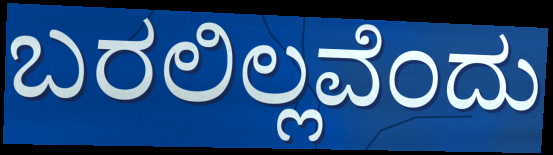
ಬರಲಿಲ್ಲವೆಂದು